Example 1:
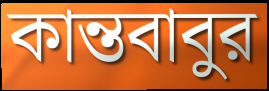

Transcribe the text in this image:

কান্তবাবুর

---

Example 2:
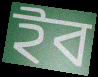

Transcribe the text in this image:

ইব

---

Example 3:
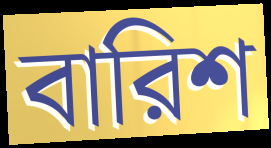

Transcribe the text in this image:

বারিশ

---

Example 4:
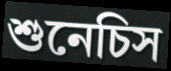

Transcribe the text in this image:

শুনেচিস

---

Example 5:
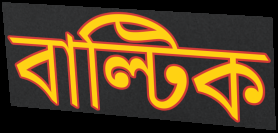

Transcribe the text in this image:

বাল্টিক